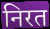
निरत